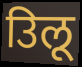
उिलू